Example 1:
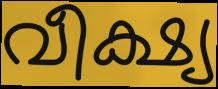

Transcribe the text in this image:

വീക്ഷ്യ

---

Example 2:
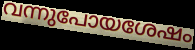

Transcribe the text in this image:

വന്നുപോയശേഷം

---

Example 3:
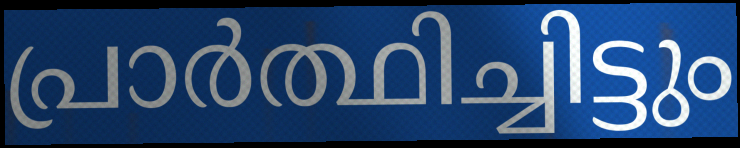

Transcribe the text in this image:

പ്രാർത്ഥിച്ചിട്ടും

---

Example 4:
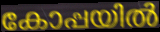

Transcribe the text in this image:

കോപ്പയിൽ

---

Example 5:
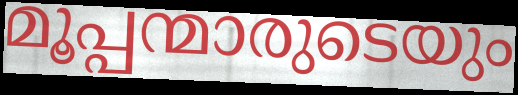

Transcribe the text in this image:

മൂപ്പന്മാരുടെയും